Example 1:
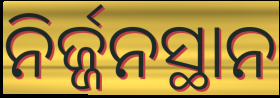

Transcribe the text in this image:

ନିର୍ଜ୍ଜନସ୍ଥାନ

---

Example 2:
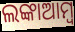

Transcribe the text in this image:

ଲଙ୍କାଆମ୍ବ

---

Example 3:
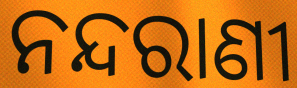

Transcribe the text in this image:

ନନ୍ଦରାଣୀ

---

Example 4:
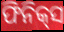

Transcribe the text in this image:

ଫିନିକ୍‌ସ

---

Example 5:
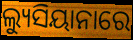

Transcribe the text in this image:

ଲ୍ୟୁସିୟାନାରେ